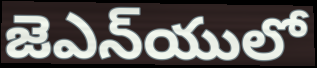
జెఎన్‌యులో